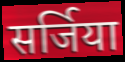
सर्जिया